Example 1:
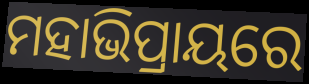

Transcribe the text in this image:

ମହାଭିପ୍ରାୟରେ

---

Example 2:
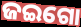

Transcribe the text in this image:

ଜଇଗୋ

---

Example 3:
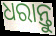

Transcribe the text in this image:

ଧରାନ୍ତୁ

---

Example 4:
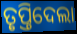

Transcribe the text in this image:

ତୃପ୍ତିଦେଲା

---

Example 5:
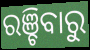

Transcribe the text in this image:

ରଞ୍ଚିବାରୁ